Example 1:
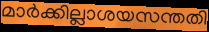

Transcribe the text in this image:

മാർക്കില്ലാശയസന്തതി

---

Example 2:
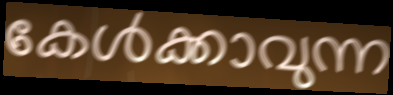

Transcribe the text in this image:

കേൾക്കാവുന്ന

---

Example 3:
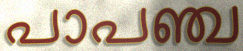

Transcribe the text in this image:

പാപഞ്ച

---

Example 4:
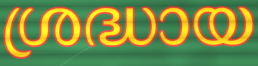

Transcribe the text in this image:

ശ്രദ്ധായ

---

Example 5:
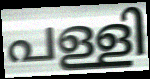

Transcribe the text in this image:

പള്ളി